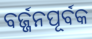
ବର୍ଜ୍ଜନପୂର୍ବକ